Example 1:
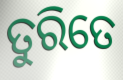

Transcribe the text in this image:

ତୁରିତେ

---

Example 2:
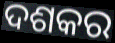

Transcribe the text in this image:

ଦଶକର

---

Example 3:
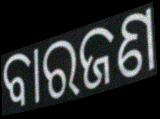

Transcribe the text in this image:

ବାରଜଣ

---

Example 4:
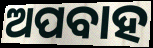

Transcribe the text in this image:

ଅପବାହ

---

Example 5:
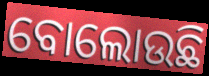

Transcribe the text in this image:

ବୋଲୋଉଛି